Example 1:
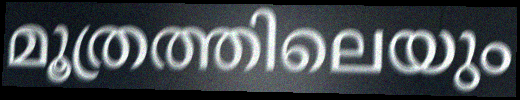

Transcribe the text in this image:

മൂത്രത്തിലെയും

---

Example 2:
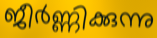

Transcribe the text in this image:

ജീർണ്ണിക്കുന്നു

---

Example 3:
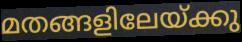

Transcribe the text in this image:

മതങ്ങളിലേയ്ക്കു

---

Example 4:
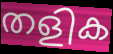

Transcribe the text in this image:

തളിക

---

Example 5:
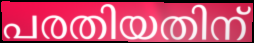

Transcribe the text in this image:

പരതിയതിന്